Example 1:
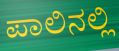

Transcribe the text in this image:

ಪಾಲಿನಲ್ಲಿ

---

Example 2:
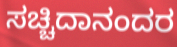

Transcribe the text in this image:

ಸಚ್ಚಿದಾನಂದರ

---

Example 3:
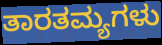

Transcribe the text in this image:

ತಾರತಮ್ಯಗಳು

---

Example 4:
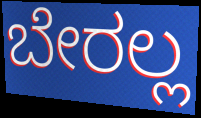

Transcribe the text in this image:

ಬೇರಲ್ಲ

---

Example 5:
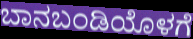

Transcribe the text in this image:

ಬಾನಬಂಡಿಯೊಳಗೆ